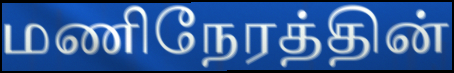
மணிநேரத்தின்